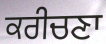
ਕਰੀਚਣਾ